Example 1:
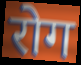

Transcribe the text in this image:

रोग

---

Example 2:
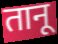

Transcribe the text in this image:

तानू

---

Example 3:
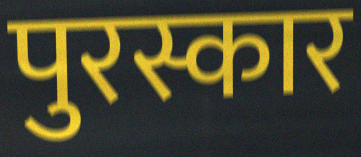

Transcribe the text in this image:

पुरस्कार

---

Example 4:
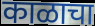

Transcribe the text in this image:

काळाचा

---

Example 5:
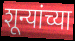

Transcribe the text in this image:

शून्यांच्या